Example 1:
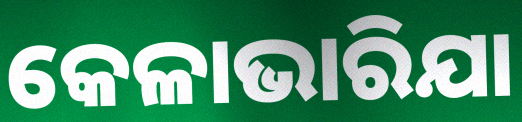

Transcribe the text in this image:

କେଳାଭାରିଯା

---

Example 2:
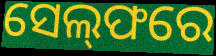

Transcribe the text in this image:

ସେଲ୍‌ଫରେ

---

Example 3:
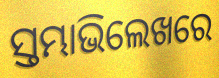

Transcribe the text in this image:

ସ୍ତମ୍ଭାଭିଲେଖରେ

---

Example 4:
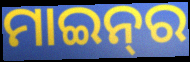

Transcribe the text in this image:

ମାଇନ୍‍ର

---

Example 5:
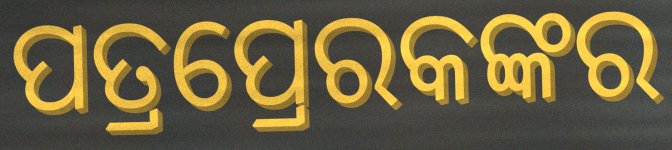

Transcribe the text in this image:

ପତ୍ରପ୍ରେରକଙ୍କର